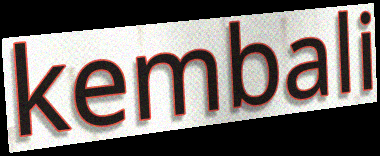
kembali